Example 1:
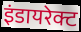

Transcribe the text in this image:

इंडायरेक्ट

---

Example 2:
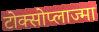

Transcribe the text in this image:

टोक्सोप्लाज्मा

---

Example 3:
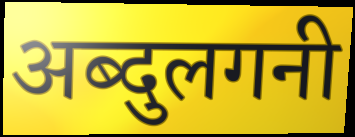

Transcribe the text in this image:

अब्दुलगनी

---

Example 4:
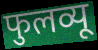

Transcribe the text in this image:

फुलव्यू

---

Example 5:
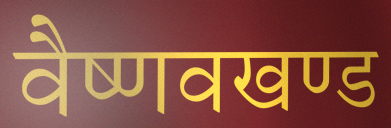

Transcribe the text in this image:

वैष्णवखण्ड